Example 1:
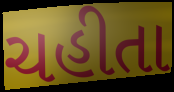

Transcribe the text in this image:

ચહીતા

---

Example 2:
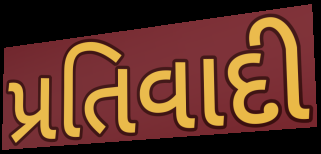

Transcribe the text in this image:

પ્રતિવાદી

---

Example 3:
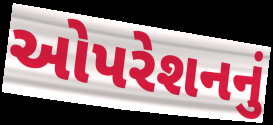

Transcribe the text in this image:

ઓપરેશનનું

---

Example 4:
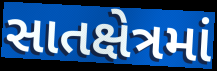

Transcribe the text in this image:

સાતક્ષેત્રમાં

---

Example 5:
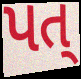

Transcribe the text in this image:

પત્